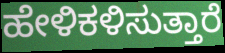
ಹೇಳಿಕಳಿಸುತ್ತಾರೆ